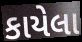
કાયેલા